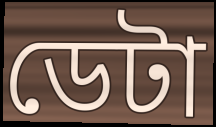
ডেটা